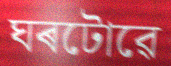
ঘৰটোৱে